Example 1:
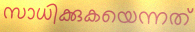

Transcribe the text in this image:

സാധിക്കുകയെന്നത്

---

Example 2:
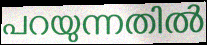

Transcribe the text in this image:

പറയുന്നതിൽ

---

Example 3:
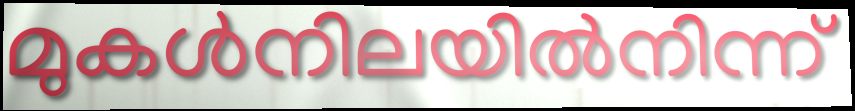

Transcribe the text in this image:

മുകൾനിലയിൽനിന്ന്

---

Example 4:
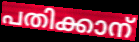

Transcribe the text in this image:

പതിക്കാന്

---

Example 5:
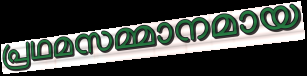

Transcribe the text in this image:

പ്രഥമസമ്മാനമായ